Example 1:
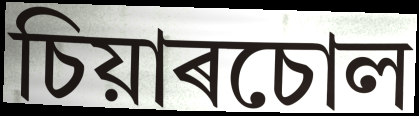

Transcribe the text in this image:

চিয়াৰচোল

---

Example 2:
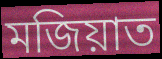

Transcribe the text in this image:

মজিয়াত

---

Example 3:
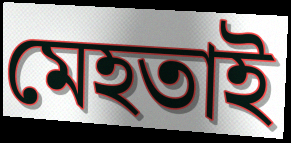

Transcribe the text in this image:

মেহতাই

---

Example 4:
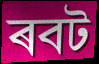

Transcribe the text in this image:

ৰবট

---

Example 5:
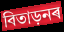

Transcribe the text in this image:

বিতাড়নৰ